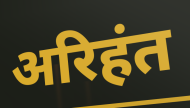
अरिहंत